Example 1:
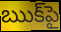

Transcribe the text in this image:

ఋక్‌పై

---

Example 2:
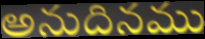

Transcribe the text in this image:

అనుదినము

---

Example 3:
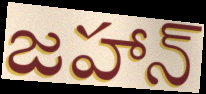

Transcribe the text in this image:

జహాన్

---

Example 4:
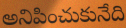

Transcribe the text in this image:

అనిపించుకునేది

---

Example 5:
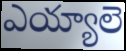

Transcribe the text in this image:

ఎయ్యాలె